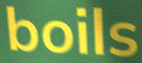
boils